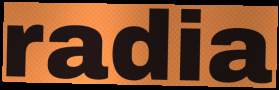
radia